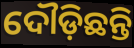
ଦୌଡ଼ିଛନ୍ତି